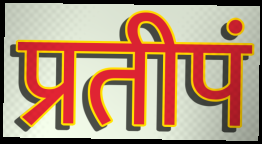
प्रतीपं